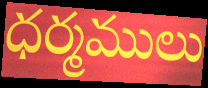
ధర్మములు